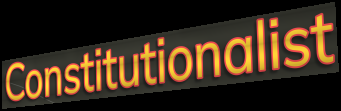
Constitutionalist